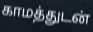
காமத்துடன்